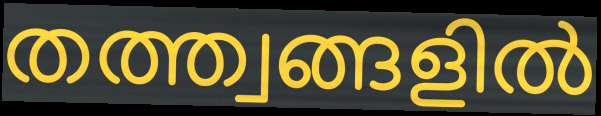
തത്ത്വങ്ങളിൽ